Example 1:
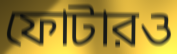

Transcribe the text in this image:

ফোটারও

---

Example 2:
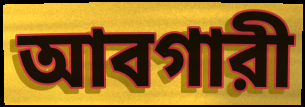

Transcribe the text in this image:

আবগারী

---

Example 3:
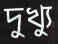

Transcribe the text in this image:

দুখ্যু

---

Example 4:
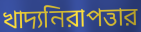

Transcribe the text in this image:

খাদ্যনিরাপত্তার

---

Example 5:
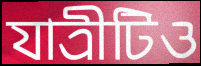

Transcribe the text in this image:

যাত্রীটিও